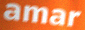
amar